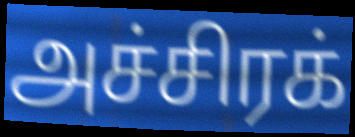
அச்சிரக்